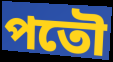
পতৌ